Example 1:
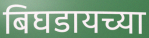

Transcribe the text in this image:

बिघडायच्या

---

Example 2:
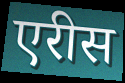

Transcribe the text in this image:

एरीस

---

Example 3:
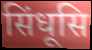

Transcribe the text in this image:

सिंधूसि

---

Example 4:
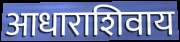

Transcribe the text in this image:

आधाराशिवाय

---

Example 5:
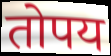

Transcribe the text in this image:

तोपय